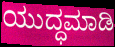
ಯುದ್ಧಮಾಡಿ